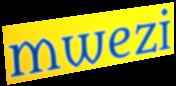
mwezi